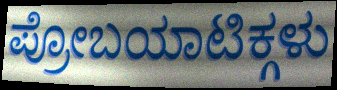
ಪ್ರೋಬಯಾಟಿಕ್ಗಳು